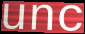
unc